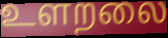
உளறலை